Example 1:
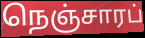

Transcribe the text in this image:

நெஞ்சாரப்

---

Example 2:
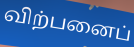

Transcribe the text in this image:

விற்பனைப்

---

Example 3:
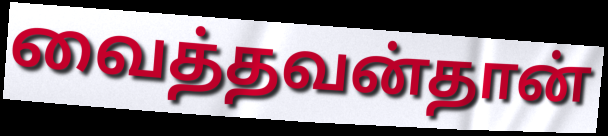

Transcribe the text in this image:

வைத்தவன்தான்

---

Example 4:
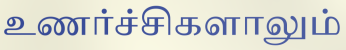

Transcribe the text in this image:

உணர்ச்சிகளாலும்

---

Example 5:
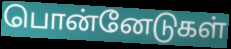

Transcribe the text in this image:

பொன்னேடுகள்